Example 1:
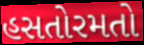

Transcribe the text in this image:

હસતોરમતો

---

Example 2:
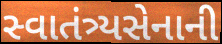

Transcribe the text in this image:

સ્વાતંત્ર્યસેનાની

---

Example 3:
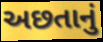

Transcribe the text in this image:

અછતાનું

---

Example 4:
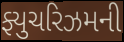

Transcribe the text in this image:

ફ્યુચરિઝમની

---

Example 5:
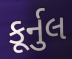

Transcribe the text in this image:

કૂર્નુલ